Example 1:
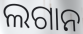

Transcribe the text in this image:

ଲଗାନ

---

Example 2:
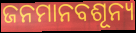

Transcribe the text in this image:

ଜନମାନବଶୂନ୍ୟ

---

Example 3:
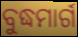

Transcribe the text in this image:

ବୁଦ୍ଧମାର୍ଗ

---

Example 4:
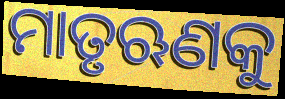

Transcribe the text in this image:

ମାତୃଋଣକୁ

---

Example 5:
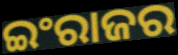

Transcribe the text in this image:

ଇଂରାଜର